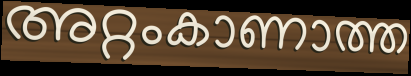
അറ്റംകാണാത്ത